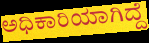
ಅಧಿಕಾರಿಯಾಗಿದ್ದೆ